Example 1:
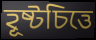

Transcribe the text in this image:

হূষ্টচিত্তে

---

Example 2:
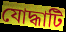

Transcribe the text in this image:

যোদ্ধাটি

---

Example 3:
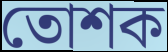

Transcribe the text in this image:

তোশক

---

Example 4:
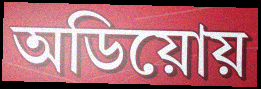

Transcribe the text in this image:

অডিয়োয়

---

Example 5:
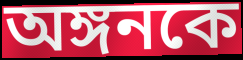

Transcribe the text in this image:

অঙ্গনকে